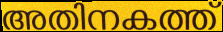
അതിനകത്ത്